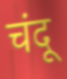
चंदू